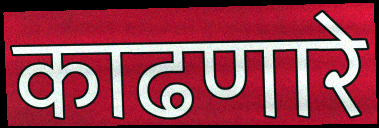
काढणारे